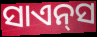
ସାଏନ୍‌ସ